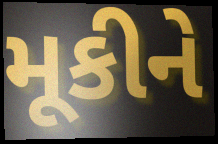
મૂકીને